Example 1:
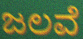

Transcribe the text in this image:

ಜಲವೆ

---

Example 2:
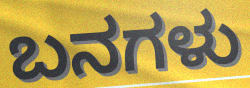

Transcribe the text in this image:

ಬನಗಳು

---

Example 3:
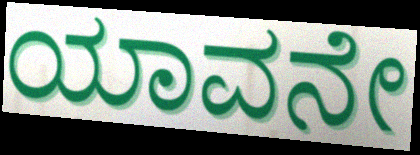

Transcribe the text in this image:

ಯಾವನೇ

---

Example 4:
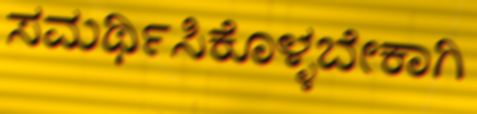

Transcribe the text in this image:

ಸಮರ್ಥಿಸಿಕೊಳ್ಳಬೇಕಾಗಿ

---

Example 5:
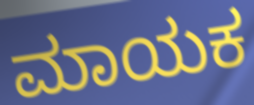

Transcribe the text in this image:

ಮಾಯಕ